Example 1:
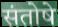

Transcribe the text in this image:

संतोषे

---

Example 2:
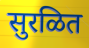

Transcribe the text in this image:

सुरळित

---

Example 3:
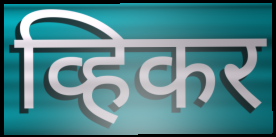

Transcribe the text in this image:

व्हिकर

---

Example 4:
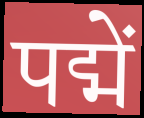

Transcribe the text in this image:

पद्में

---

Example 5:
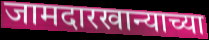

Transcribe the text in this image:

जामदारखान्याच्या